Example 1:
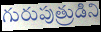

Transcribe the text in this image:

గురుపుత్రుడిని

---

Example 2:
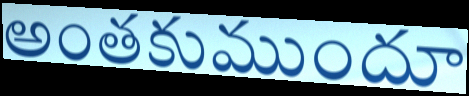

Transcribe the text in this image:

అంతకుముందూ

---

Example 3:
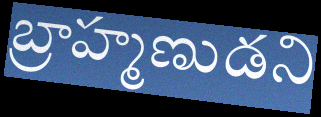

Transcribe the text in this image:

బ్రాహ్మణుడని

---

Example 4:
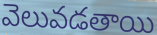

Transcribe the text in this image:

వెలువడతాయి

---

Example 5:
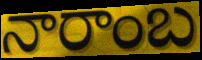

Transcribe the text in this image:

నారాంబ